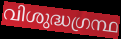
വിശുദ്ധഗ്രന്ഥ